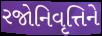
રજોનિવૃત્તિને